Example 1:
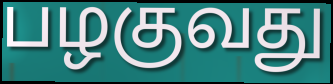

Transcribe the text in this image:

பழகுவது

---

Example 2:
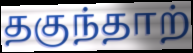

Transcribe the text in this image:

தகுந்தாற்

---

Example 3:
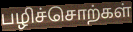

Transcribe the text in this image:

பழிச்சொற்கள்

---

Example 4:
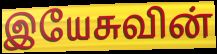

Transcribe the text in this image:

இயேசுவின்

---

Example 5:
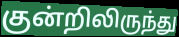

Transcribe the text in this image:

குன்றிலிருந்து